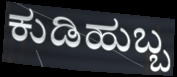
ಕುಡಿಹುಬ್ಬ